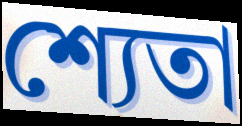
শ্যেতা